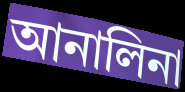
আনালিনা